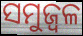
ସମୁଜ୍ୱଳ